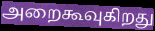
அறைகூவுகிறது